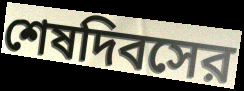
শেষদিবসের